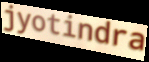
jyotindra